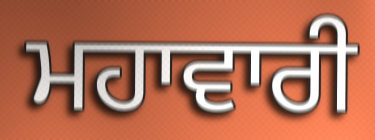
ਮਹਾਵਾਰੀ